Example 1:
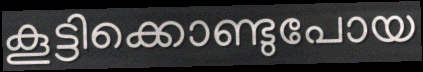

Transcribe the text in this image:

കൂട്ടിക്കൊണ്ടുപോയ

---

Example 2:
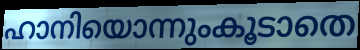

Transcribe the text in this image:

ഹാനിയൊന്നുംകൂടാതെ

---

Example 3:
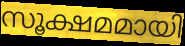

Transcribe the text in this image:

സൂക്ഷമമായി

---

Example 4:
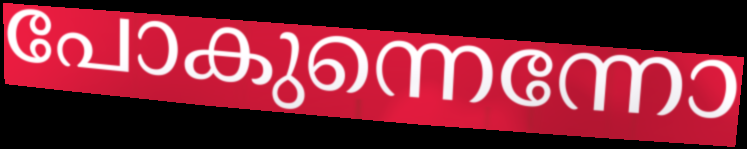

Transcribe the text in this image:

പോകുന്നെന്നോ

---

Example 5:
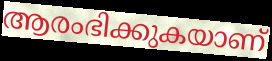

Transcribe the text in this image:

ആരംഭിക്കുകയാണ്